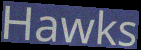
Hawks